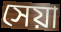
সেয়া